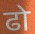
ढो